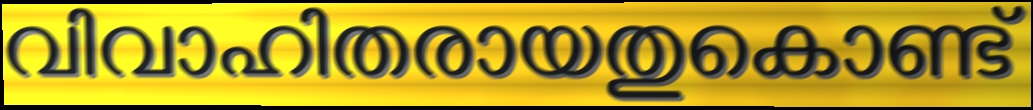
വിവാഹിതരായതുകൊണ്ട്